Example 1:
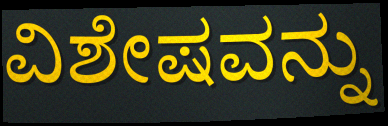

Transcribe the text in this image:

ವಿಶೇಷವನ್ನು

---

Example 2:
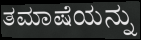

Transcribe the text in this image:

ತಮಾಷೆಯನ್ನು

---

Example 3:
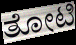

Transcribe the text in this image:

ತೋಟಿ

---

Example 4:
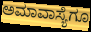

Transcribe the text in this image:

ಅಮಾವಾಸ್ಯೆಗೂ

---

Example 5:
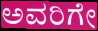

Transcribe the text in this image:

ಅವರಿಗೇ